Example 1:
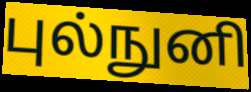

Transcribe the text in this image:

புல்நுனி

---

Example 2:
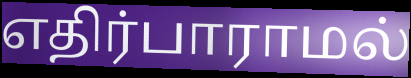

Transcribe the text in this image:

எதிர்பாராமல்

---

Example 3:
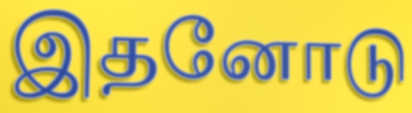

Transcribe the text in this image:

இதனோடு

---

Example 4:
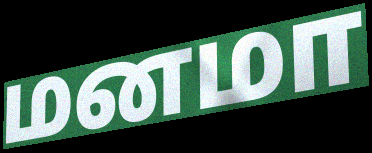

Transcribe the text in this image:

மனமா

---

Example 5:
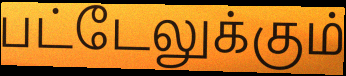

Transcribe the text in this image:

பட்டேலுக்கும்